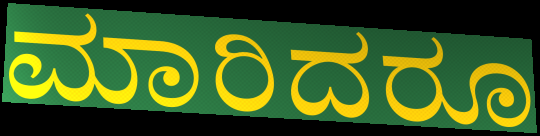
ಮಾರಿದರೂ